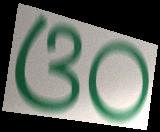
ଓଠ